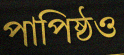
পাপিষ্ঠও